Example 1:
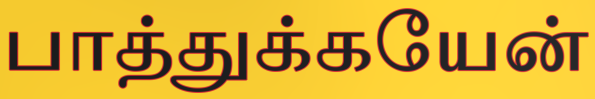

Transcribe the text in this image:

பாத்துக்கயேன்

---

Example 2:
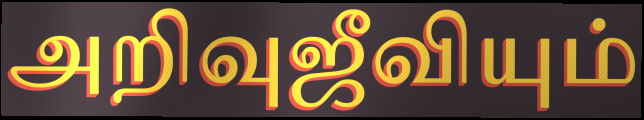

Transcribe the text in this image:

அறிவுஜீவியும்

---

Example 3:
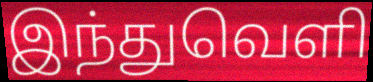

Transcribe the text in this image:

இந்துவெளி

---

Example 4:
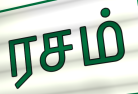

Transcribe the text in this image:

ரசம்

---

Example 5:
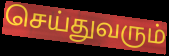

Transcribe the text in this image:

செய்துவரும்